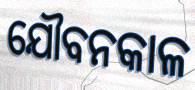
ଯୌବନକାଳ